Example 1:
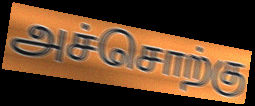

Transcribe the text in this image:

அச்சொற்கு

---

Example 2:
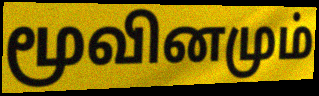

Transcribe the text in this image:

மூவினமும்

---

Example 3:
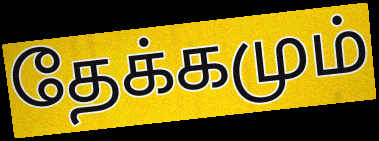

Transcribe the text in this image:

தேக்கமும்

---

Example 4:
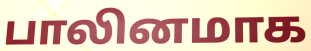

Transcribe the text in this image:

பாலினமாக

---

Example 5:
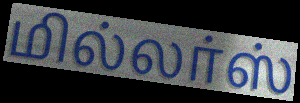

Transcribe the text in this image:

மில்லர்ஸ்